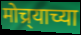
मोच्र्याच्या